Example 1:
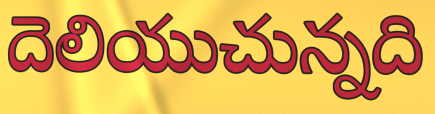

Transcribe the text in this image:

దెలియుచున్నది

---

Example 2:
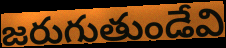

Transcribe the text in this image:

జరుగుతుండేవి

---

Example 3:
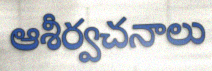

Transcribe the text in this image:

ఆశీర్వచనాలు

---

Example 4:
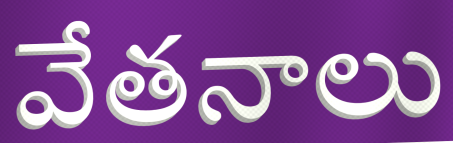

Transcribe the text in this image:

వేతనాలు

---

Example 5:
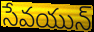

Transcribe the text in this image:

సేవయున్